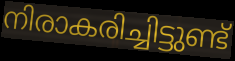
നിരാകരിച്ചിട്ടുണ്ട്